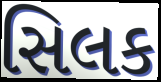
સિલક